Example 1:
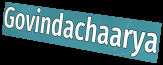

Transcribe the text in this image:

Govindachaarya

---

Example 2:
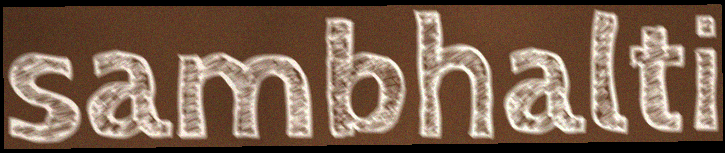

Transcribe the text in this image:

sambhalti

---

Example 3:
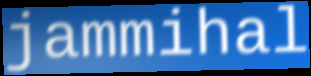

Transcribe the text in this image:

jammihal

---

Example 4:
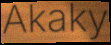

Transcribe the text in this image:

Akaky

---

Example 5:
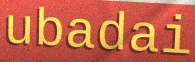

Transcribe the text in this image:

ubadai